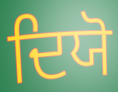
ਦਿਯੋ